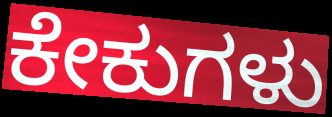
ಕೇಕುಗಳು